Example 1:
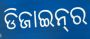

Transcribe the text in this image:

ଡିଜାଇନ୍‌ର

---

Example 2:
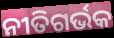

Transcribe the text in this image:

ନୀତିଗର୍ଭକ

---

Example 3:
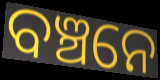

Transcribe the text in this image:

ବଞ୍ଚନେ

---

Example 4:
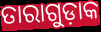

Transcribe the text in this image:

ତାରାଗୁଡ଼ାକ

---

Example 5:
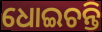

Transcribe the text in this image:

ଧୋଇଚନ୍ତି